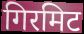
गिरमिट